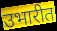
उभारीत